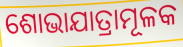
ଶୋଭାଯାତ୍ରାମୂଳକ